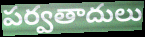
పర్వతాదులు